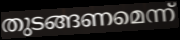
തുടങ്ങണമെന്ന്